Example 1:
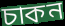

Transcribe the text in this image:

চাকন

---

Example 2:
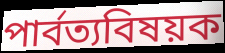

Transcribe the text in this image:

পার্বত্যবিষয়ক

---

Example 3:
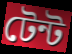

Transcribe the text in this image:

টেন্ট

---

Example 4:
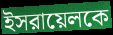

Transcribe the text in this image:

ইসরায়েলকে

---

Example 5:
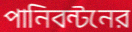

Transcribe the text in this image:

পানিবন্টনের